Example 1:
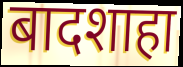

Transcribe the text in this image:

बादशाहा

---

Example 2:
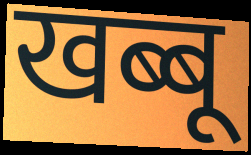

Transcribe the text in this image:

खब्‍बू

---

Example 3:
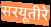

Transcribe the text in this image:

सरयूतीरे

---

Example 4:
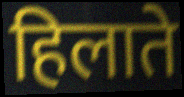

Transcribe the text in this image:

हिलाते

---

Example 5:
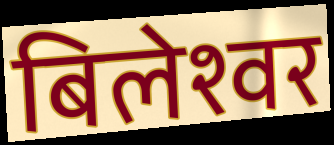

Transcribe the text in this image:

बिलेश्वर